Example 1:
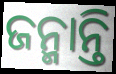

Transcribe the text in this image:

ଜନ୍ମାନ୍ତି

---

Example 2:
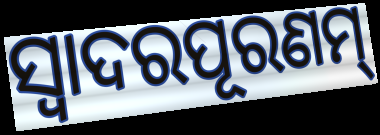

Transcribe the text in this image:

ସ୍ଵାଦରପୂରଣମ୍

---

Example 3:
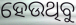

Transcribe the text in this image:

ହେଉଥିବୁ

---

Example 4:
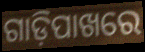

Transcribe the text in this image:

ଗାଡ଼ିପାଖରେ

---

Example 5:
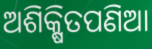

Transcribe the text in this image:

ଅଶିକ୍ଷିତପଣିଆ